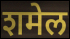
शमेल